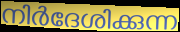
നിർദേശിക്കുന്ന